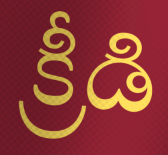
క్రీడి